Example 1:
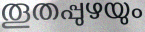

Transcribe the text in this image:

തൂതപ്പുഴയും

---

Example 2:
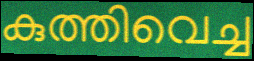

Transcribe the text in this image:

കുത്തിവെച്ച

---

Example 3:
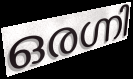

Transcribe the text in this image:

ഒരഗ്നി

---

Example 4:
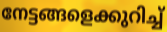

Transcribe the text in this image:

നേട്ടങ്ങളെക്കുറിച്ച്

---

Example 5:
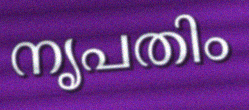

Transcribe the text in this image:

നൃപതിം